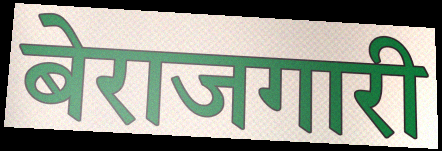
बेराजगारी